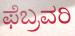
ಫೆಬ್ರವರಿ